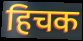
हिचक